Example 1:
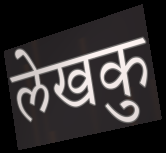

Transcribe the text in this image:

लेखकु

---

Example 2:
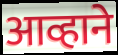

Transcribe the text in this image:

आव्हाने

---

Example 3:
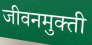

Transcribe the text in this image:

जीवनमुक्ती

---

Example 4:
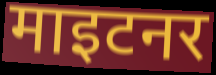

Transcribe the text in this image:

माइटनर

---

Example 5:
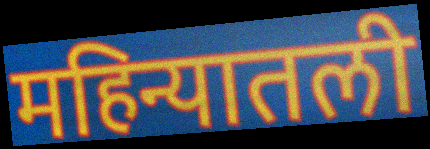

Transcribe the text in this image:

महिन्यातली